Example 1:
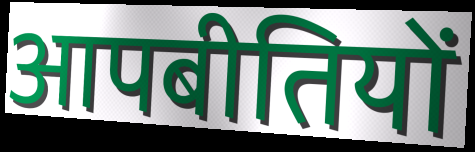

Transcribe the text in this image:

आपबीतियों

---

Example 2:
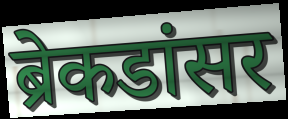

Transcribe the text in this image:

ब्रेकडांसर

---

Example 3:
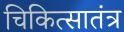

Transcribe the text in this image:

चिकित्सातंत्र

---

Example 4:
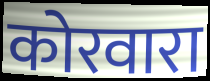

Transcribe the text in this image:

कोरवारा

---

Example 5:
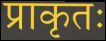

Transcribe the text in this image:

प्राकृतः